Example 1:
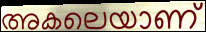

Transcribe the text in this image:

അകലെയാണ്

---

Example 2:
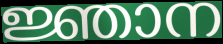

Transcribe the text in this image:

ജ്ഞാന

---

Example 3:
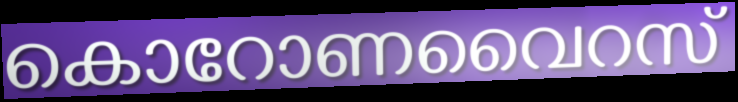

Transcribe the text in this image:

കൊറോണവൈറസ്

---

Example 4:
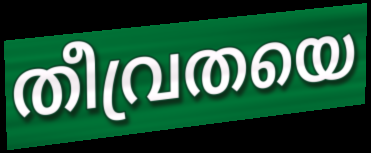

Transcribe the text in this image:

തീവ്രതയെ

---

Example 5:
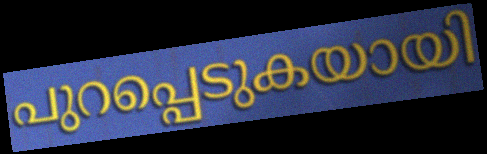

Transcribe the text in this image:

പുറപ്പെടുകയായി